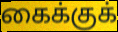
கைக்குக்